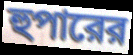
হুপারের